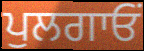
ਪੁਲਗਾਓਂ